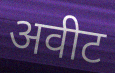
अवीट